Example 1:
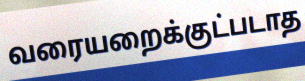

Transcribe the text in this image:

வரையறைக்குட்படாத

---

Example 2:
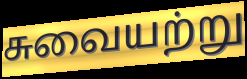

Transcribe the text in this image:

சுவையற்று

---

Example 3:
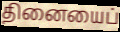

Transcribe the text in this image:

தினையைப்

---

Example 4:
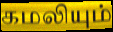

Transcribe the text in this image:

கமலியும்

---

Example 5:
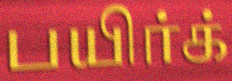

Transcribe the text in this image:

பயிர்க்